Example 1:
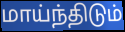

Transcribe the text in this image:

மாய்ந்திடும்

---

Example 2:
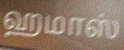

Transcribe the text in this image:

ஹமாஸ்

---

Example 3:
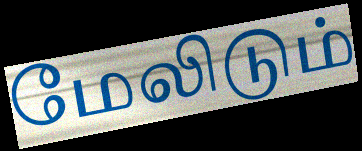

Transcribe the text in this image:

மேலிடும்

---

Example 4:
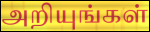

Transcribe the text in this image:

அறியுங்கள்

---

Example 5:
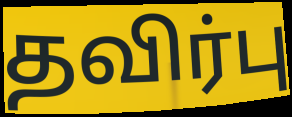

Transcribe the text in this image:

தவிர்பு